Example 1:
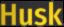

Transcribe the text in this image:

Husk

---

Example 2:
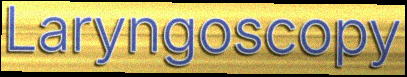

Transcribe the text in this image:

Laryngoscopy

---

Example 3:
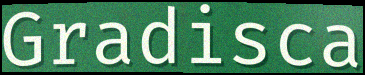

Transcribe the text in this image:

Gradisca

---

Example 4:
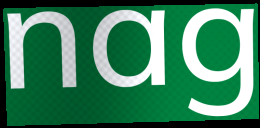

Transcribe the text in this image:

nag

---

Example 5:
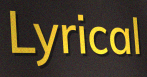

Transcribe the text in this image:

Lyrical